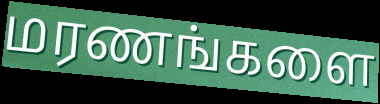
மரணங்களை